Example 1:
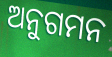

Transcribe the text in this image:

ଅନୁଗମନ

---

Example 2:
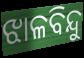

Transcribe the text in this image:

ଝାଳବିନ୍ଦୁ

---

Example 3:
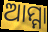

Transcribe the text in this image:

ଆମ୍ମା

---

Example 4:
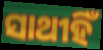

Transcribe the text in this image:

ସାଥୀହିଁ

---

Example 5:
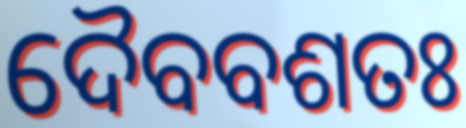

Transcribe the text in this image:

ଦୈବବଶତଃ